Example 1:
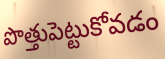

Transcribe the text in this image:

పొత్తుపెట్టుకోవడం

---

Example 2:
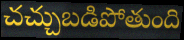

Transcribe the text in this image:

చచ్చుబడిపోతుంది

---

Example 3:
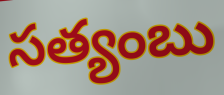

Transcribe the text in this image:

సత్యంబు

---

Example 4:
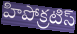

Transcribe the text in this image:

హిపోక్రటిస్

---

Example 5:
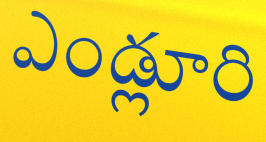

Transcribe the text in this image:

ఎండ్లూరి